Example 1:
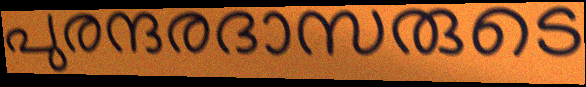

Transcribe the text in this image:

പുരന്ദരദാസരുടെ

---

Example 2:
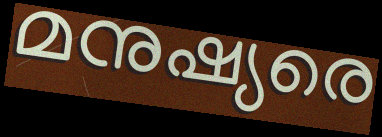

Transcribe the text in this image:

മനുഷ്യരെ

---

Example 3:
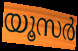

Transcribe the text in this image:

യൂസർ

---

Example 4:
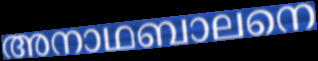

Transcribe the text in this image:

അനാഥബാലനെ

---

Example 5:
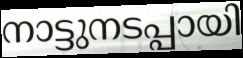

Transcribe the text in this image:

നാട്ടുനടപ്പായി